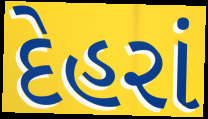
દેહરાં